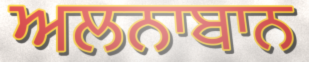
ਅਲਨਾਬਾਨ